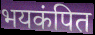
भयकंपित